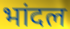
भांदल